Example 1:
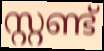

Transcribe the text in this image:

സ്റ്റണ്ട്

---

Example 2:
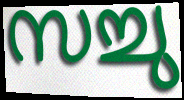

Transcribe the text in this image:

സച്ചു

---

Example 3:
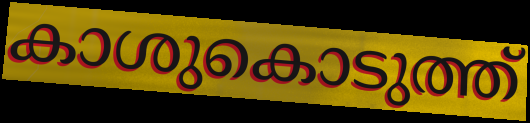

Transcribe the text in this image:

കാശുകൊടുത്ത്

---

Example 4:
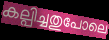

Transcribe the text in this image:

കല്പിച്ചതുപോലെ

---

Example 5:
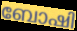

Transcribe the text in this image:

ബോഷി